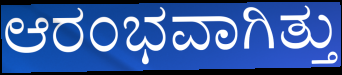
ಆರಂಭವಾಗಿತ್ತು